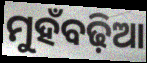
ମୁହଁବଢ଼ିଆ